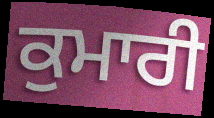
ਕੁਮਾਰੀ